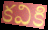
కవికి